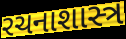
રચનાશાસ્ત્ર